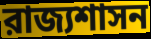
রাজ্যশাসন